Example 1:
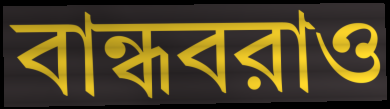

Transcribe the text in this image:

বান্ধবরাও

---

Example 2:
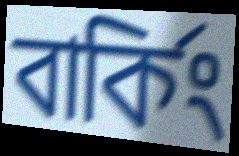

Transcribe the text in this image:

বার্কিং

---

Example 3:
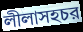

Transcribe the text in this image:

লীলাসহচর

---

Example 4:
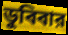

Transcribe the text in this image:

ডুবিবার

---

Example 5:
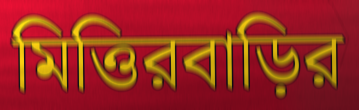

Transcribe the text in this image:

মিত্তিরবাড়ির